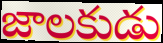
జాలకుడు